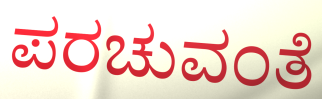
ಪರಚುವಂತೆ